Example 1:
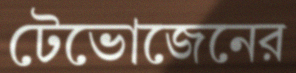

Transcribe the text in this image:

টেভোজেনের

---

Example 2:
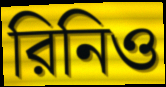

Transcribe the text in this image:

রিনিও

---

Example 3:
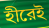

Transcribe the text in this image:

হীরেই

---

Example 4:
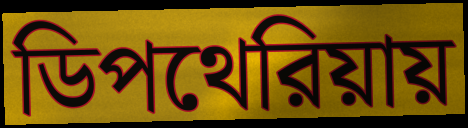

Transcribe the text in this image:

ডিপথেরিয়ায়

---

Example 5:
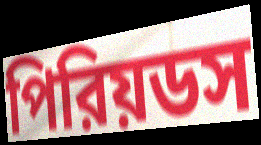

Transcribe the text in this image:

পিরিয়ডস